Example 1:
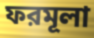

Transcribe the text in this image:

ফরমূলা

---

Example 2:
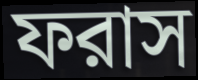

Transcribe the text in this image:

ফরাস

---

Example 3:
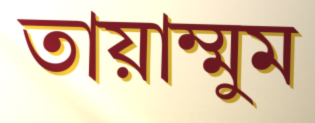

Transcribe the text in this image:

তায়াম্মুম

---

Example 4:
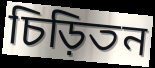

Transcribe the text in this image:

চিড়িতন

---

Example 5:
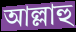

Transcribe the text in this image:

আল্লাহু